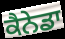
ਕੈਨੇਡਾ